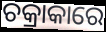
ଚକ୍ରାକାରେ